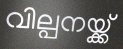
വില്പനയ്ക്ക്